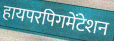
हायपरपिगमेंटेशन